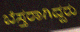
ಬೆಸ್ತರಾಗಿದ್ದರು